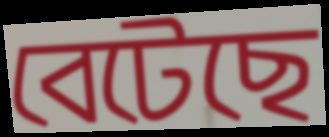
বেটেছে